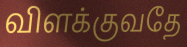
விளக்குவதே